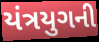
યંત્રયુગની